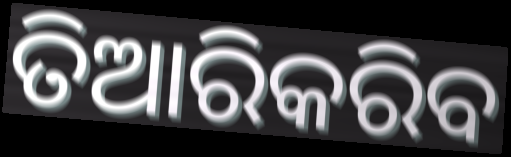
ତିଆରିକରିବ